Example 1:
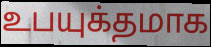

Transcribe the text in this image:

உபயுக்தமாக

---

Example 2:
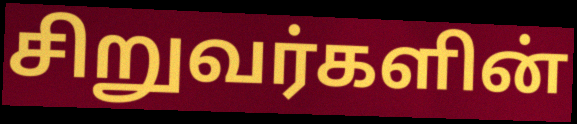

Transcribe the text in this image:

சிறுவர்களின்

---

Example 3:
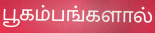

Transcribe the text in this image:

பூகம்பங்களால்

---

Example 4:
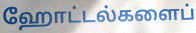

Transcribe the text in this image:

ஹோட்டல்களைப்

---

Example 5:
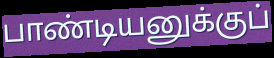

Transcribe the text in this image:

பாண்டியனுக்குப்